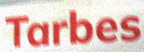
Tarbes